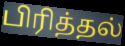
பிரித்தல்